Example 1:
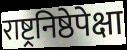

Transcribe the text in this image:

राष्ट्रनिष्ठेपेक्षा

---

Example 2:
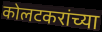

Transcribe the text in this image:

कोलटकरांच्या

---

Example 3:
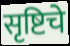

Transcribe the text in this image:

सृष्टिचे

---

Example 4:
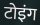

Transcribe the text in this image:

टोइंग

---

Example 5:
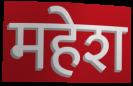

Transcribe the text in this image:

महेश